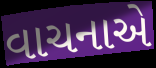
વાચનાએ